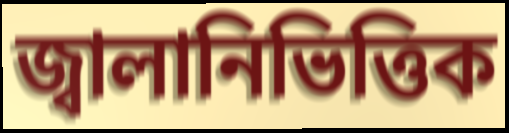
জ্বালানিভিত্তিক